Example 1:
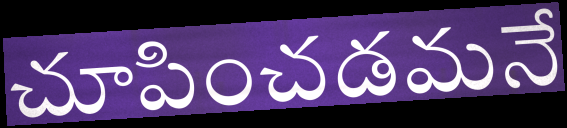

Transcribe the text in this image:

చూపించడమనే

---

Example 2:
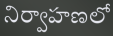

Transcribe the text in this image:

నిర్వాహణలో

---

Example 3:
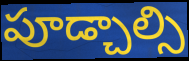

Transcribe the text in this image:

పూడ్చాల్సి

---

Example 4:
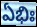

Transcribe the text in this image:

ఏభిః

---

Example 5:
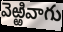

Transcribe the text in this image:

వెఱ్ఱివాగు